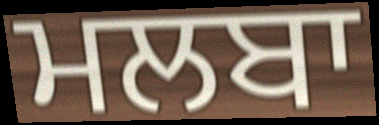
ਮਲਬਾ